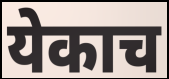
येकाच